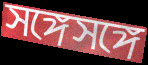
সঙ্গেসঙ্গে